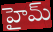
హైమ్